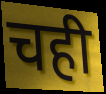
चही